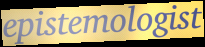
epistemologist